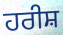
ਹਰੀਸ਼